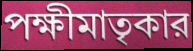
পক্ষীমাতৃকার